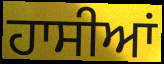
ਹਾਸੀਆਂ